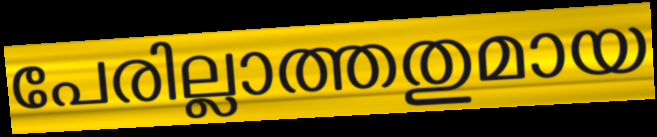
പേരില്ലാത്തതുമായ